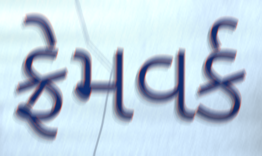
ફ્રેમવર્ક